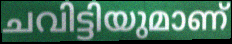
ചവിട്ടിയുമാണ്